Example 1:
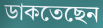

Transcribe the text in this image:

ডাকতেছেন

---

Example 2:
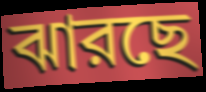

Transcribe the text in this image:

ঝারছে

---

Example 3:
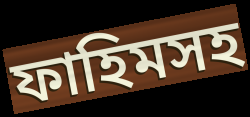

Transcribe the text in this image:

ফাহিমসহ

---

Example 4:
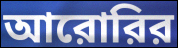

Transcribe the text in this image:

আরোরির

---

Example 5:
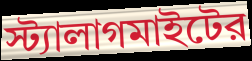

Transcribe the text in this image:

স্ট্যালাগমাইটের